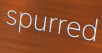
spurred